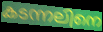
കടന്നലിനെ